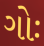
ગોઃ